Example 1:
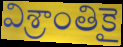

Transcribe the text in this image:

విశ్రాంతికై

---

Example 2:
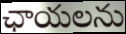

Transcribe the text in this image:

ఛాయలను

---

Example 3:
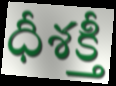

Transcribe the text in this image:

ధీశక్తీ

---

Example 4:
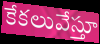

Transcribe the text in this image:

కేకలువేస్తూ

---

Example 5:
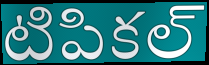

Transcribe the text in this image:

టిపికల్